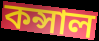
কন্সাল